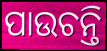
ପାଉଚନ୍ତି